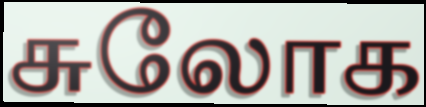
சுலோக